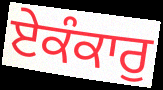
ਏਕੰਕਾਰੁ